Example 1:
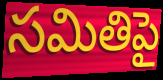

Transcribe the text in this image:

సమితిపై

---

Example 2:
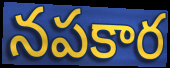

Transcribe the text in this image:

నపకార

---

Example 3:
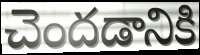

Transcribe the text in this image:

చెందడానికి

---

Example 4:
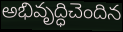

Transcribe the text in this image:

అభివృద్ధిచెందిన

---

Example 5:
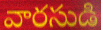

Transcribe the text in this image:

వారసుడి